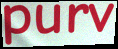
purv